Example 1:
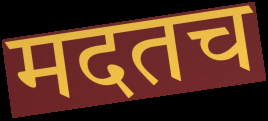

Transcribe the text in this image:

मदतच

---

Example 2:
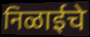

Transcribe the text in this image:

निळाईचे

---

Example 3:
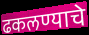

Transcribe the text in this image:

ढकलण्याचे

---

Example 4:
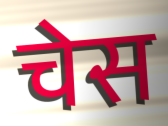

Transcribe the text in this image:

चेस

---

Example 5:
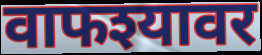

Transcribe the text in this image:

वाफश्यावर